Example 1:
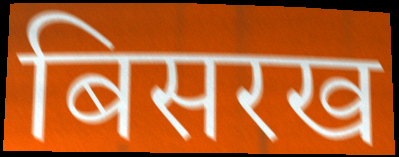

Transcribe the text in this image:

बिसरख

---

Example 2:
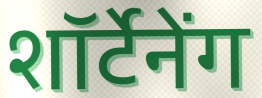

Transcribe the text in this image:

शॉर्टेनेंग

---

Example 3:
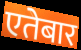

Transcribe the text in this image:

एतेबार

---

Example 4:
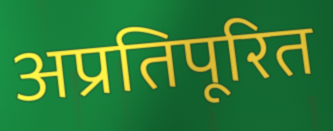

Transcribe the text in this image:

अप्रतिपूरित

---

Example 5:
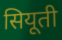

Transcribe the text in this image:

सियूती